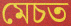
মেচত